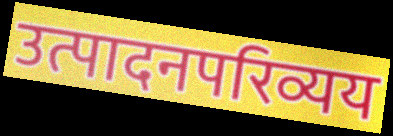
उत्पादनपरिव्यय